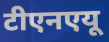
टीएनएयू